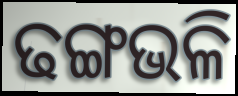
ଢଙ୍ଗଭଳି